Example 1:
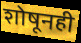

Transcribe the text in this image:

शोषूनही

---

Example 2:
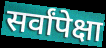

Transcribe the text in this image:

सर्वांपेक्षा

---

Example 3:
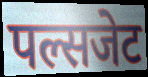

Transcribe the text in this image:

पल्सजेट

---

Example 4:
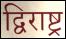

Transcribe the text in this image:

द्विराष्ट्र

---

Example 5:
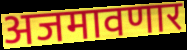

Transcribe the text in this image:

अजमावणार